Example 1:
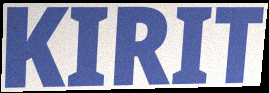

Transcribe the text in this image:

KIRIT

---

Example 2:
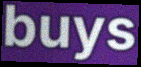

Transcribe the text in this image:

buys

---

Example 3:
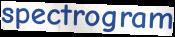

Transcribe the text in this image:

spectrogram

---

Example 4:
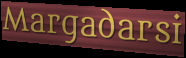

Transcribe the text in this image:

Margadarsi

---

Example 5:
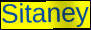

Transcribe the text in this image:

Sitaney